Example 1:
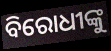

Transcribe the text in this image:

ବିରୋଧୀଙ୍କୁ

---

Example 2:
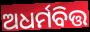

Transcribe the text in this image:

ଅଧର୍ମବିତ୍ତ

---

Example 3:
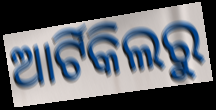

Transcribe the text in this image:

ଆର୍ଟିକିଲରୁ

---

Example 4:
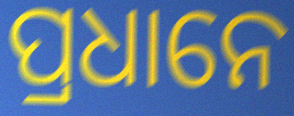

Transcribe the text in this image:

ପ୍ରଧାନେ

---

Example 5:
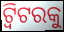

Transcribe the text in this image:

ଟ୍ୱିଟରକୁ